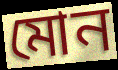
মোন